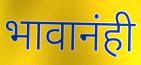
भावानंही